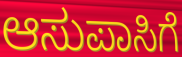
ಆಸುಪಾಸಿಗೆ